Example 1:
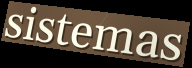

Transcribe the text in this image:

sistemas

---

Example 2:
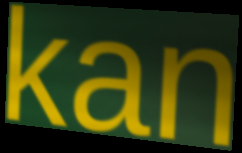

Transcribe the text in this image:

kan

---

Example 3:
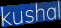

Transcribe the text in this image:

kushal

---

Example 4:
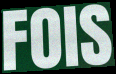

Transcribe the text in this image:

FOIS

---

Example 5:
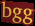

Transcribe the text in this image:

bgg